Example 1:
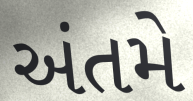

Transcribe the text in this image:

અંતમે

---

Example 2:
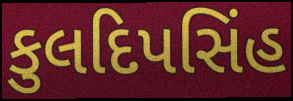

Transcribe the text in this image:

કુલદિપસિંહ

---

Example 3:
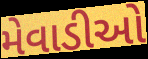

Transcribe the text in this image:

મેવાડીઓ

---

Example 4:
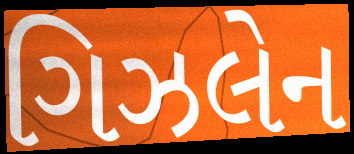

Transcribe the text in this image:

ગિઝલેન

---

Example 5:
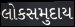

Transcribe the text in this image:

લોકસમુદાય